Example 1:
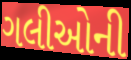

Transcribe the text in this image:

ગલીઓની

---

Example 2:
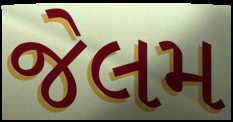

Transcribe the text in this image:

જેલમ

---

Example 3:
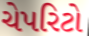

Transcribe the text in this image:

ચેપરિટો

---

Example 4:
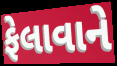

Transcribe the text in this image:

ફેલાવાને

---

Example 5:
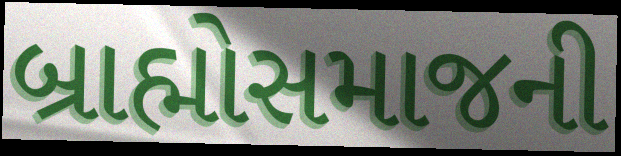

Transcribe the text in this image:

બ્રાહ્મોસમાજની